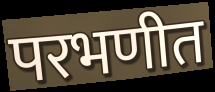
परभणीत